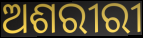
ଅଶରୀରୀ